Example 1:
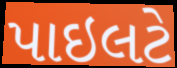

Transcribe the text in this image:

પાઇલટે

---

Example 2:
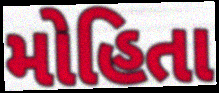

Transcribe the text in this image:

મોહિતા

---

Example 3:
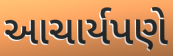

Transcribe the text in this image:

આચાર્યપણે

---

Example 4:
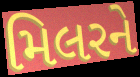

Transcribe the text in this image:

મિલરને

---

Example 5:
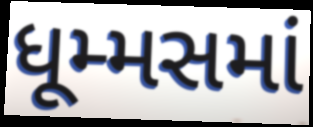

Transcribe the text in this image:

ધૂમ્મસમાં